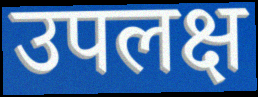
उपलक्ष